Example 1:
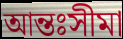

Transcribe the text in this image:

আন্তঃসীমা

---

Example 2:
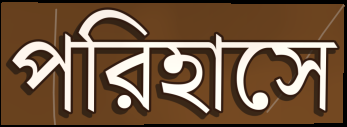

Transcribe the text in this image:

পরিহাসে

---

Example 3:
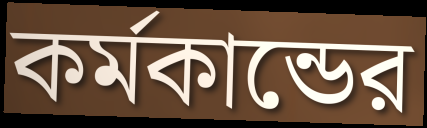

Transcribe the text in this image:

কর্মকান্ডের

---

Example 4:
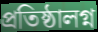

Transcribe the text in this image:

প্রতিষ্ঠালগ্ন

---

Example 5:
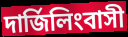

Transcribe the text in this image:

দার্জিলিংবাসী